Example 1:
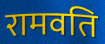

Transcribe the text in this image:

रामवति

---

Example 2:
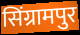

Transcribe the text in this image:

सिंग्रामपुर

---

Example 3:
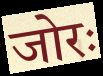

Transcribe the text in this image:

जोरः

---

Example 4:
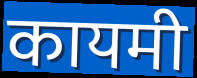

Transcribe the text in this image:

कायमी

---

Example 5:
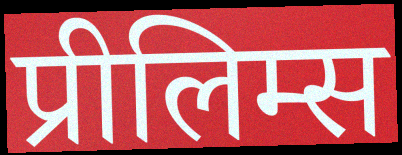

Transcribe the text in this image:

प्रीलिम्स